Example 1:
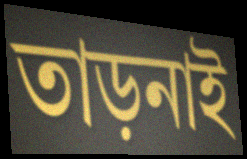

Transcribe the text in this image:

তাড়নাই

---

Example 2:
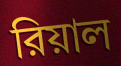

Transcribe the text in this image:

রিয়াল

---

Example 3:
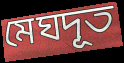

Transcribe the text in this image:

মেঘদূত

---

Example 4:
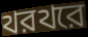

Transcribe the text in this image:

থরথরে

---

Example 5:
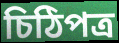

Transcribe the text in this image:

চিঠিপত্র